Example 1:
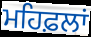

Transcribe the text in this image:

ਮਹਿਫ਼ਲਾਂ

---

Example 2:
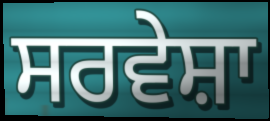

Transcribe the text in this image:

ਸਰਵੇਸ਼ਾ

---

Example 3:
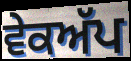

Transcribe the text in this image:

ਵੇਕਅੱਪ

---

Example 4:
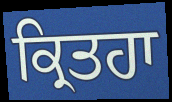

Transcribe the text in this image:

ਕ੍ਰਿਤਹਾ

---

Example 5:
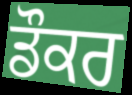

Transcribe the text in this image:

ਡੌਕਰ